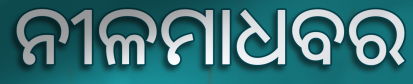
ନୀଳମାଧବର